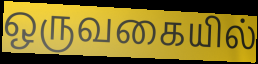
ஒருவகையில்